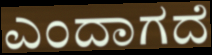
ಎಂದಾಗದೆ